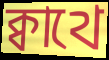
ক্বাথে